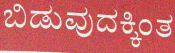
ಬಿಡುವುದಕ್ಕಿಂತ